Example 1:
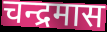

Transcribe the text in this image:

चन्द्रमास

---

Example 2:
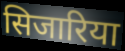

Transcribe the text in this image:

सिजारिया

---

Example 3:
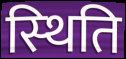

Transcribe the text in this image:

स्‍थिति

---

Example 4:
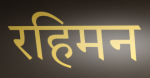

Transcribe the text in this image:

रहिमन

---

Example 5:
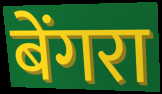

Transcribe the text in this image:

बेंगरा